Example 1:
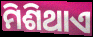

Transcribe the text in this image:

ମିଶିଥାଏ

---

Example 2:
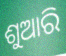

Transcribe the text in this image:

ଶୁଆରି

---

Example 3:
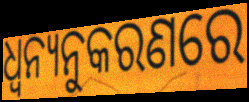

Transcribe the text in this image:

ଧ୍ଵନ୍ୟନୁକରଣରେ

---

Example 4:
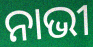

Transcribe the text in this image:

ନାଭୀ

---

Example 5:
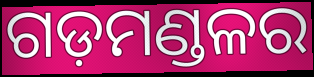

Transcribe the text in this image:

ଗଡ଼ମଣ୍ଡଳର